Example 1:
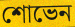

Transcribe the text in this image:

শোভেন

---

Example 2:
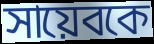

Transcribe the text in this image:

সায়েবকে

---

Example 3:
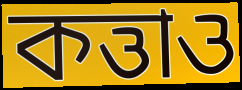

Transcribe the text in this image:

কত্তাও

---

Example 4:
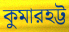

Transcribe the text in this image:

কুমারহট্ট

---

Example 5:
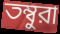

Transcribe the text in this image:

তম্বুরা